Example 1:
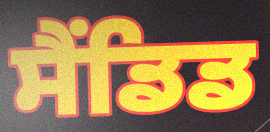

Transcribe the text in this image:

ਸੈਂਡਿਡ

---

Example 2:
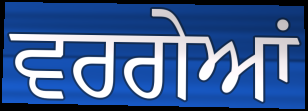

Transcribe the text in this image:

ਵਰਗੇਆਂ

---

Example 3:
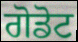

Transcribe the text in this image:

ਗੋਡੋਟ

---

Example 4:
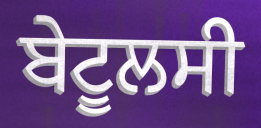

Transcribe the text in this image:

ਬੇਟੂਲਸੀ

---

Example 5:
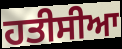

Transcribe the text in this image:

ਹਤੀਸੀਆ